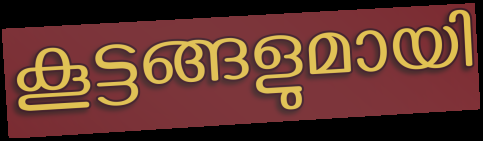
കൂട്ടങ്ങളുമായി